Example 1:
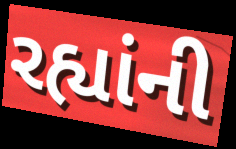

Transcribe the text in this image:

રહ્યાંની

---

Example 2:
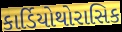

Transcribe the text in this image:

કાર્ડિયોથોરાસિક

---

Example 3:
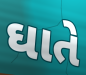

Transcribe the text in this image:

ઘાતે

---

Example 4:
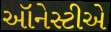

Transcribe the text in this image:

ઑનેસ્ટીએ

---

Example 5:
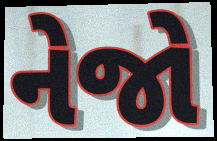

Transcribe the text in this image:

નેજો